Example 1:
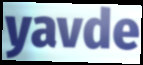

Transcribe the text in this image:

yavde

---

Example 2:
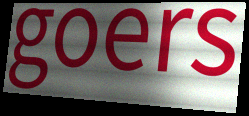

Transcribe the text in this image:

goers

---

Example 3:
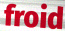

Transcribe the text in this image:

froid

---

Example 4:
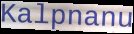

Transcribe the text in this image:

Kalpnanu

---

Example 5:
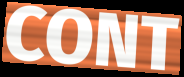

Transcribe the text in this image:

CONT